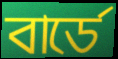
বার্ডে